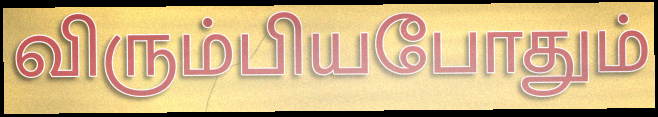
விரும்பியபோதும்